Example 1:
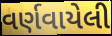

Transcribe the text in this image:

વર્ણવાયેલી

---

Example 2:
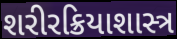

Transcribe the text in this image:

શરીરક્રિયાશાસ્ત્ર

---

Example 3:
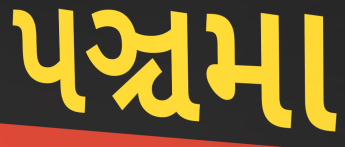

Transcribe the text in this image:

પઞ્ચમા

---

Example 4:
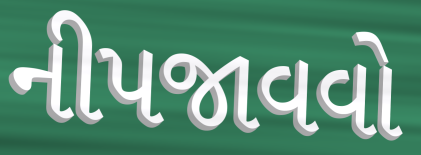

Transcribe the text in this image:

નીપજાવવો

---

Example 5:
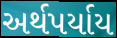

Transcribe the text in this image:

અર્થપર્યાય